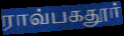
ராவ்பகதூர்